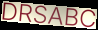
DRSABC